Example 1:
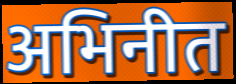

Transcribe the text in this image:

अभिनीत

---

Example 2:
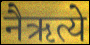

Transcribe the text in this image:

नैऋत्ये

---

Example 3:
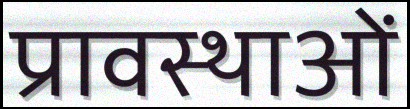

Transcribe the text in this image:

प्रावस्थाओं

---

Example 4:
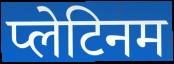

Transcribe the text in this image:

प्लेटिनम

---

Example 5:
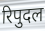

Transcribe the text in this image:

रिपुदल